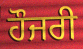
ਹੌਜਰੀ